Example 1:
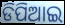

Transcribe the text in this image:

ଡିପିଆଇ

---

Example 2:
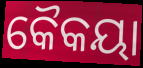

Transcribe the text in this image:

କୈକୟା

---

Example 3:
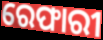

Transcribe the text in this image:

ରେଫାରୀ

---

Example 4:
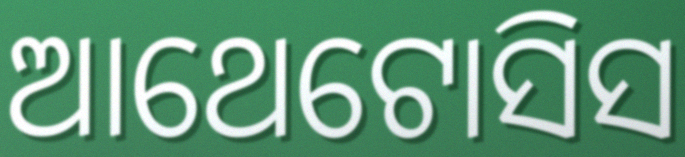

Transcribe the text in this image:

ଆଥେଟୋସିସ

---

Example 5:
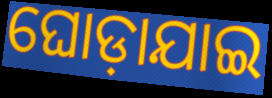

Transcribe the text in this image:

ଘୋଡ଼ାଯାଇ